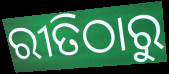
ରୀତିଠାରୁ